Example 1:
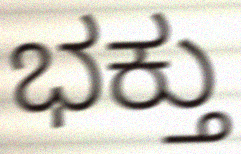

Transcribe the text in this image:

ಭಕ್ತು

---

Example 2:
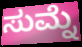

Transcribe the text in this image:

ಸುಮ್ನೆ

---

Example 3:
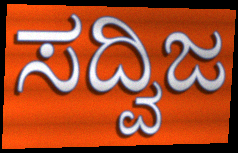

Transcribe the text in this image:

ಸದ್ವಿಜ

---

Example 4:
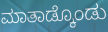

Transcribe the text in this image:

ಮಾತಾಡ್ಕೊಂಡು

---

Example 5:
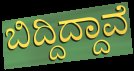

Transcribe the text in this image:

ಬಿದ್ದಿದ್ದಾವೆ